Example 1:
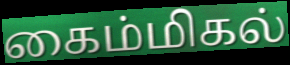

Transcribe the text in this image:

கைம்மிகல்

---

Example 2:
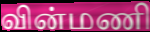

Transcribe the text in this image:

வின்மணி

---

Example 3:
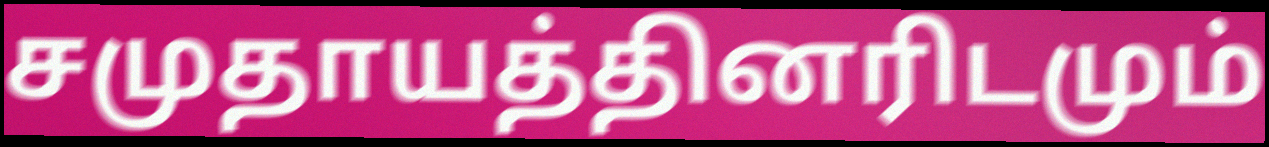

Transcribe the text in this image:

சமுதாயத்தினரிடமும்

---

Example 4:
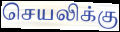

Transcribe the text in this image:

செயலிக்கு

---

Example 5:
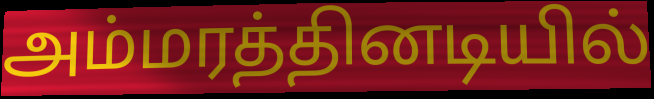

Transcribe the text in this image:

அம்மரத்தினடியில்